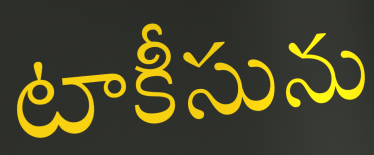
టాకీసును